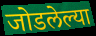
जोडलेल्या